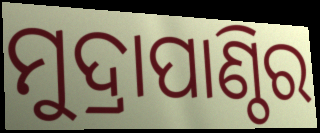
ମୁଦ୍ରାପାଣ୍ଠିର